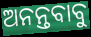
ଅନନ୍ତବାବୁ